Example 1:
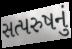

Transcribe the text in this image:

સત્પરુષનું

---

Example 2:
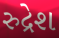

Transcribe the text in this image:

રુદ્રેશ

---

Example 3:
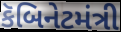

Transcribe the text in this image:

કૅબિનેટમંત્રી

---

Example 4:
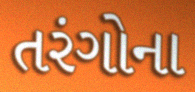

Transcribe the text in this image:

તરંગોના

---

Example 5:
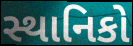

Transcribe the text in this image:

સ્થાનિકો